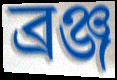
ব্ৰঞ্জ